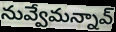
నువ్వేమన్నావ్